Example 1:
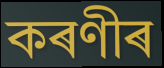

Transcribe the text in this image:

কৰণীৰ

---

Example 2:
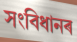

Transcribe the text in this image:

সংবিধানৰ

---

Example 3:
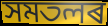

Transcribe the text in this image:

সমতলৰ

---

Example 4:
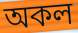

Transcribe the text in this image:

অকল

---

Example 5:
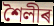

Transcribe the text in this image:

শৈলীৰ